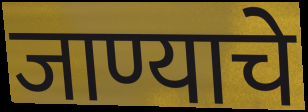
जाण्याचे